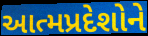
આત્મપ્રદેશોને